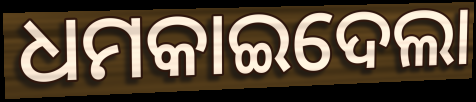
ଧମକାଇଦେଲା